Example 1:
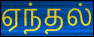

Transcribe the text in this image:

ஏந்தல்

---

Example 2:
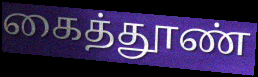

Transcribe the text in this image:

கைத்தூண்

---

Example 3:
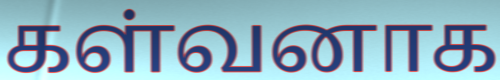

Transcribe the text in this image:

கள்வனாக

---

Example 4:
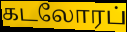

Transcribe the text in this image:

கடலோரப்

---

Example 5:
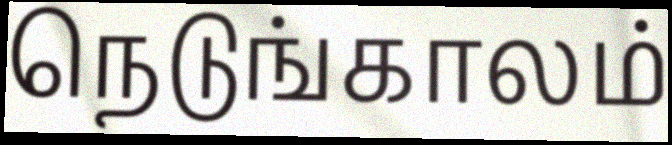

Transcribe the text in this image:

நெடுங்காலம்